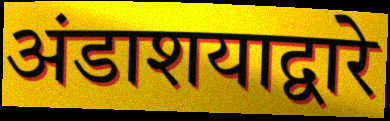
अंडाशयाद्वारे